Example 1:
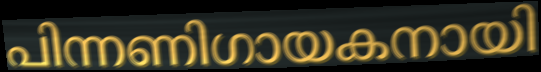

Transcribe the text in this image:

പിന്നണിഗായകനായി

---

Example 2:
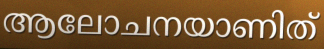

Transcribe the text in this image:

ആലോചനയാണിത്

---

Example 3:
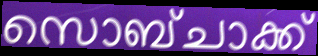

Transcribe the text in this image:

സൊബ്ചാക്ക്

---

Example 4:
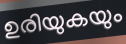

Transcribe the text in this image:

ഉരിയുകയും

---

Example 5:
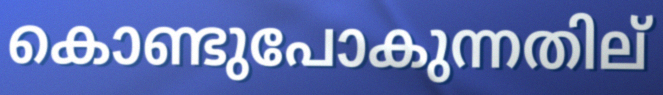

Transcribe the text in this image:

കൊണ്ടുപോകുന്നതില്